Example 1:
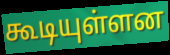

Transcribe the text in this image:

கூடியுள்ளன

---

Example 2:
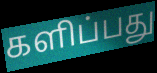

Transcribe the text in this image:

களிப்பது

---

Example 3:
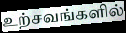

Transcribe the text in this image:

உற்சவங்களில்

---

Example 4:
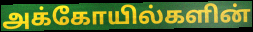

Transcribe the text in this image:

அக்கோயில்களின்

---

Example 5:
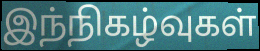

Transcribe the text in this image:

இந்நிகழ்வுகள்